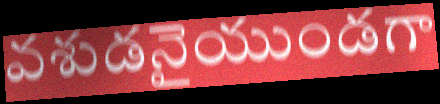
వశుడనైయుండగా